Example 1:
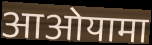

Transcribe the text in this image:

आओयामा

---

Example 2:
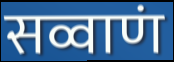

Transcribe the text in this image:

सव्वाणं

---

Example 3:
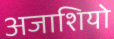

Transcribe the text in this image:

अजाशियो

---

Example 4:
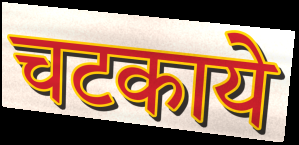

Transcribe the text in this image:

चटकाये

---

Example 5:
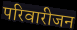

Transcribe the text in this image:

परिवारीजन